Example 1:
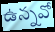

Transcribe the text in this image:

ఉన్నవో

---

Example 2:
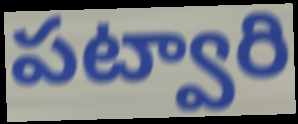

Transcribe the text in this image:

పట్వారి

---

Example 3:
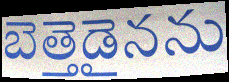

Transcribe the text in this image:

బెత్తెడైనను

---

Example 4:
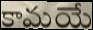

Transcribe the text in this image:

కామయే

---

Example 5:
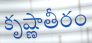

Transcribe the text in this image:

కృష్ణాతీరం